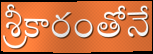
శ్రీకారంతోనే